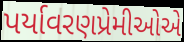
પર્યાવરણપ્રેમીઓએ